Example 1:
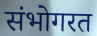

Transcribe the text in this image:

संभोगरत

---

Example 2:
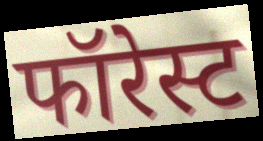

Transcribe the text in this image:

फॉरेस्ट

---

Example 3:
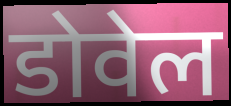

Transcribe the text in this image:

डोवेल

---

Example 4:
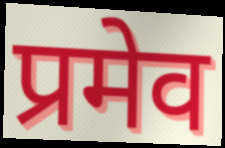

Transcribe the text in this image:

प्रमेव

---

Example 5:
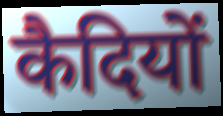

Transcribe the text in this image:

कैदियों